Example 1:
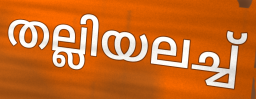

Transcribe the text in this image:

തല്ലിയലച്ച്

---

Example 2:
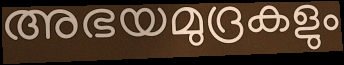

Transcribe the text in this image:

അഭയമുദ്രകളും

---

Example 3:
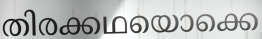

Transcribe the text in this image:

തിരക്കഥയൊക്കെ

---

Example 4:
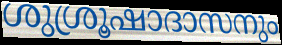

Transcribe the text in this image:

ശുശ്രൂഷാദാസനും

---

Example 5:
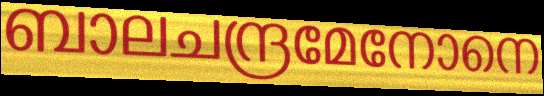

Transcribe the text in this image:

ബാലചന്ദ്രമേനോനെ